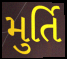
મુર્તિ